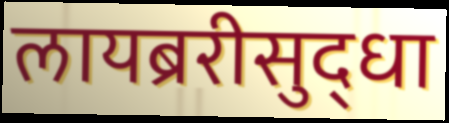
लायब्ररीसुद्धा